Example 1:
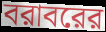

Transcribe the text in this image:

বরাবরের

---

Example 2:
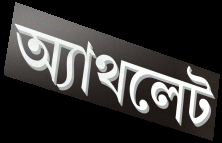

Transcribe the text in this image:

অ্যাথলেট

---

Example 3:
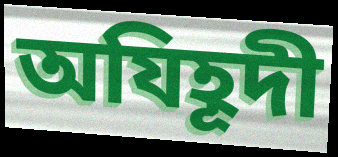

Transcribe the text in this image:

অযিহূদী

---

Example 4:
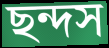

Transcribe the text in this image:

ছন্দস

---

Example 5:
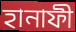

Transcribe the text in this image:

হানাফী